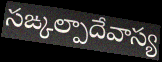
సఙ్కల్పాదేవాస్య